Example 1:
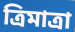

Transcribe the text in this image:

ত্রিমাত্রা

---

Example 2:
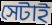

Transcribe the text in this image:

সেটাই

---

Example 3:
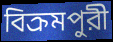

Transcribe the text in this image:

বিক্রমপুরী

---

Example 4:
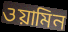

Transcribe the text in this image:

ওয়ামিন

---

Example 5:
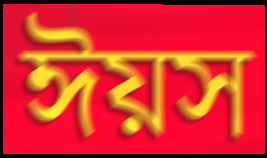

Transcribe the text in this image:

ঈয়স